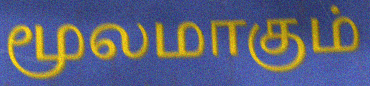
மூலமாகும்